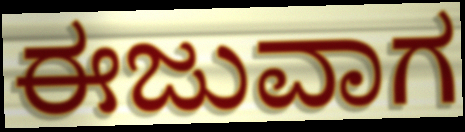
ಈಜುವಾಗ